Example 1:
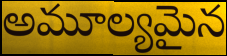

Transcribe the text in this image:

అమూల్యమైన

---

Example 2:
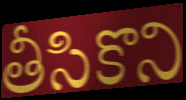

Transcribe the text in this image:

తీసికొని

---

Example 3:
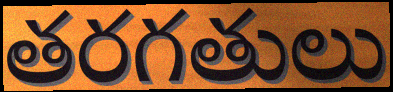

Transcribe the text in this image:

తరగతులు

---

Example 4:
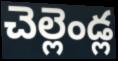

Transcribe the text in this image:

చెల్లెండ్ల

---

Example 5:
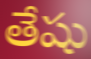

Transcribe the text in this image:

తేషు